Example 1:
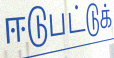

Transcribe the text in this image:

ஈடுபட்டுக்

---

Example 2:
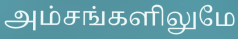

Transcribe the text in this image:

அம்சங்களிலுமே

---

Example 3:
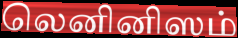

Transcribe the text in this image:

லெனினிஸம்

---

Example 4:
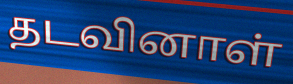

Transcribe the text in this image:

தடவினாள்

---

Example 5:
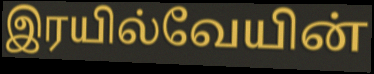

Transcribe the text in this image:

இரயில்வேயின்